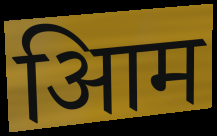
आिम